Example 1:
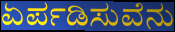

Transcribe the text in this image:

ಏರ್ಪಡಿಸುವೆನು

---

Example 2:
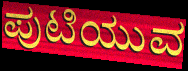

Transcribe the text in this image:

ಪುಟಿಯುವ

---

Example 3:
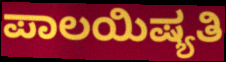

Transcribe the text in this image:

ಪಾಲಯಿಷ್ಯತಿ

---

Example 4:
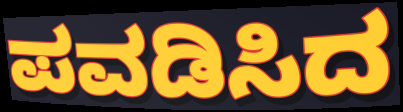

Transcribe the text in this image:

ಪವಡಿಸಿದ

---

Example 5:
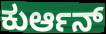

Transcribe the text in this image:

ಕುರ್ಆನ್